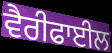
ਵੈਰੀਫਾਈਲ